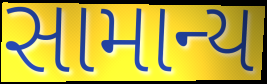
સામાન્ય